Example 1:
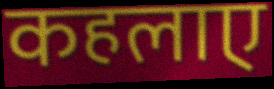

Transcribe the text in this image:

कहलाए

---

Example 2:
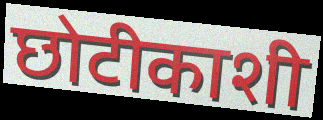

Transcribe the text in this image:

छोटीकाशी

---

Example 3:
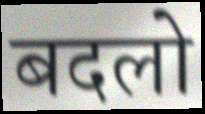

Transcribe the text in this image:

बदलो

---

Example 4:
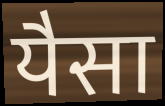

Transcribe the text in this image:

यैसा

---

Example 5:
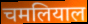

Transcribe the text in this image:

चमलियाल